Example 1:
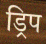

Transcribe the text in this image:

ड्रिप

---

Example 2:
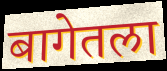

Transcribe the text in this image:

बागेतला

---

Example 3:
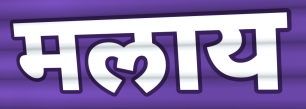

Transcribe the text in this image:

मलाय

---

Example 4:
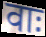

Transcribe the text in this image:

वाः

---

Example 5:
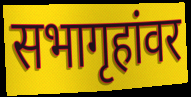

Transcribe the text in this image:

सभागृहांवर